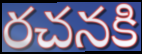
రచనకి